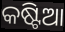
କଷ୍ଟିଆ